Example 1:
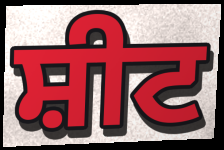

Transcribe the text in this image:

ਸ਼ੀਟ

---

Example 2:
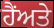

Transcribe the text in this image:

ਹੈਂਅਤੇ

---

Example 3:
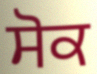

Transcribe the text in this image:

ਸੋਕ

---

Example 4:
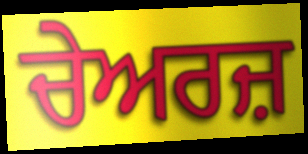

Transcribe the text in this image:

ਚੇਅਰਜ਼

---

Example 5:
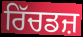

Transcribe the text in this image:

ਰਿੱਚਡਜ਼